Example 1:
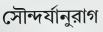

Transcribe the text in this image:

সৌন্দর্যানুরাগ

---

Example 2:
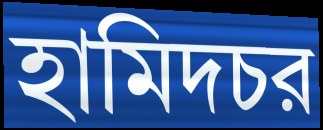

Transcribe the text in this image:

হামিদচর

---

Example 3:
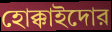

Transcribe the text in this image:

হোক্কাইদোর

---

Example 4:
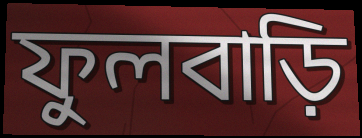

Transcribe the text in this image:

ফুলবাড়ি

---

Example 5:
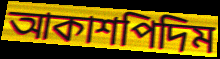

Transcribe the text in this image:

আকাশপিদিম